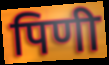
पिणी